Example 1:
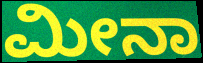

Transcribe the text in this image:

ಮೀನಾ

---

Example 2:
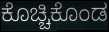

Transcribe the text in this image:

ಕೊಚ್ಚಿಕೊಂಡ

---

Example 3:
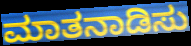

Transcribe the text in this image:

ಮಾತನಾಡಿಸು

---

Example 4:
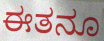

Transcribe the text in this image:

ಈತನೂ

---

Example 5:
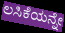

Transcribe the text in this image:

ಲಸಿಕೆಯನ್ನೇ